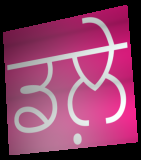
ਡਲ਼ੇ